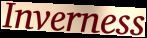
Inverness